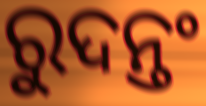
ରୁଦନ୍ତଂ